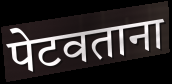
पेटवताना